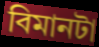
বিমানটা